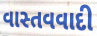
વાસ્તવવાદી